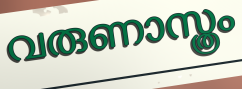
വരുണാസ്ത്രം